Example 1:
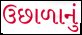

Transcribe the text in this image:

ઉછાળાનું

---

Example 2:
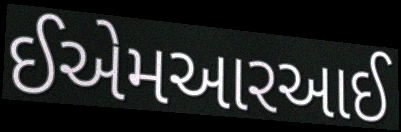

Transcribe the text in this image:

ઈએમઆરઆઈ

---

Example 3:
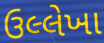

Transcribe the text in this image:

ઉલ્લેખા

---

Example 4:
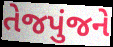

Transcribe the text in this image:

તેજપુંજને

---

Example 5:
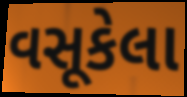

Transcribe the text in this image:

વસૂકેલા